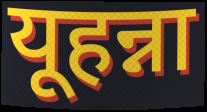
यूहन्ना